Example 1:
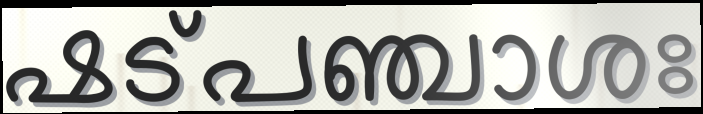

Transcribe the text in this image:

ഷട്പഞ്ചാശഃ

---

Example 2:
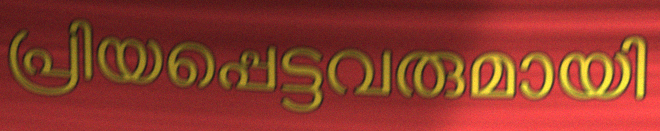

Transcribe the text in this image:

പ്രിയപ്പെട്ടവരുമായി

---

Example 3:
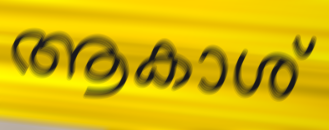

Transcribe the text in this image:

ആകാശ്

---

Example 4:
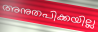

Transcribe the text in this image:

അനുതപിക്കയില്ല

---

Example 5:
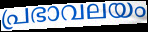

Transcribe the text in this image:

പ്രഭാവലയം